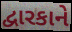
દ્વારકાને